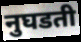
नुघडती